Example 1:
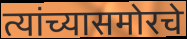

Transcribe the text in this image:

त्यांच्यासमोरचे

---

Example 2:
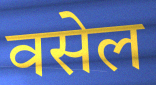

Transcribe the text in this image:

वसेल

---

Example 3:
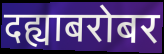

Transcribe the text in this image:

दह्याबरोबर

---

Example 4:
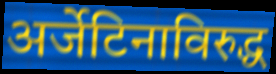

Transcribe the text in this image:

अर्जेटिनाविरुद्ध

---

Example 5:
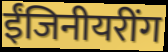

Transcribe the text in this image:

ईंजिनीयरींग